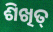
ଶିଖିତ୍